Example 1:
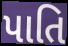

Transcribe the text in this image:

પાતિ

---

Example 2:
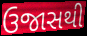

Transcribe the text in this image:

ઉજાસથી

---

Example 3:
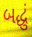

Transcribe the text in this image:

બદ્ધું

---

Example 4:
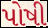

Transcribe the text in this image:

પોષી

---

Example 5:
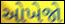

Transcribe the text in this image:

ઓખેજો